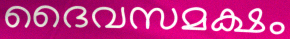
ദൈവസമക്ഷം